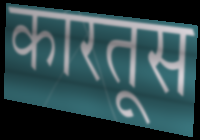
कारतूस